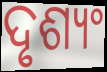
ଦୃଶ୍ୟଂ